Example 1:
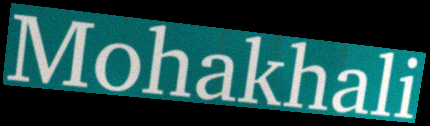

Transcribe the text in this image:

Mohakhali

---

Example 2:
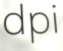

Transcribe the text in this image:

dpi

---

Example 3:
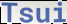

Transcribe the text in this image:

Tsui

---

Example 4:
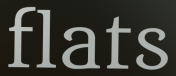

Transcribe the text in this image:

flats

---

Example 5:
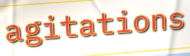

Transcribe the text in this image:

agitations